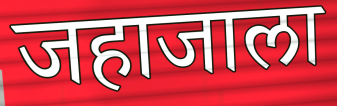
जहाजाला